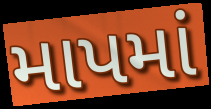
માપમાં